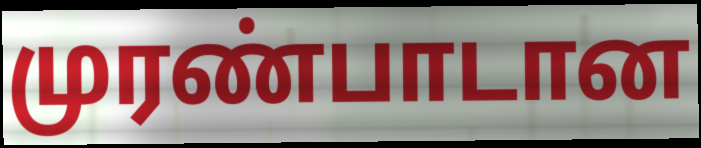
முரண்பாடான